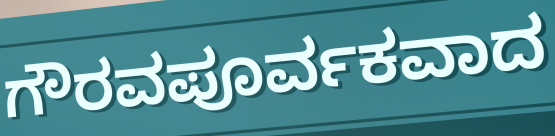
ಗೌರವಪೂರ್ವಕವಾದ